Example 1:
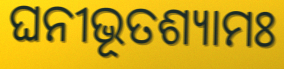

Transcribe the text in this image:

ଘନୀଭୂତଶ୍ୟାମଃ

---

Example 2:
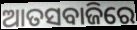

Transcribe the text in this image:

ଆତସବାଜିରେ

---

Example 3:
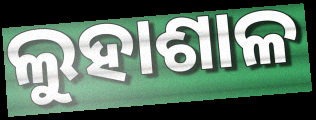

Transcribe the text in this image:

ଲୁହାଶାଳ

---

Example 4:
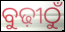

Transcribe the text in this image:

ବୁଢ଼ୀଠୁଁ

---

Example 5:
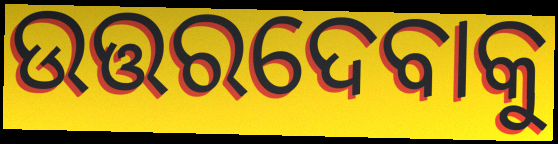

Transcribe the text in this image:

ଉତ୍ତରଦେବାକୁ